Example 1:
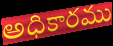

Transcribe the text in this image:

అధికారము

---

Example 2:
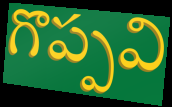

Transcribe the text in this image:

గొప్పవి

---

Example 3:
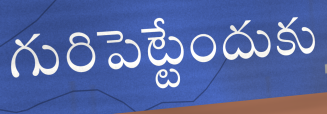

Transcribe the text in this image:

గురిపెట్టేందుకు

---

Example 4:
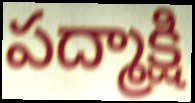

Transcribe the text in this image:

పద్మాక్షి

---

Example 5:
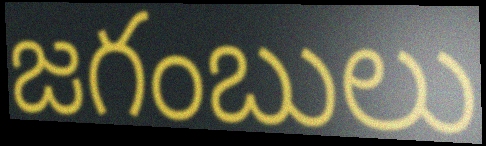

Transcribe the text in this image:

జగంబులు